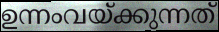
ഉന്നംവയ്ക്കുന്നത്